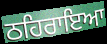
ਠਹਿਰਾਇਆ